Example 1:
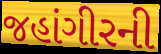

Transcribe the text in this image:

જહાંગીરની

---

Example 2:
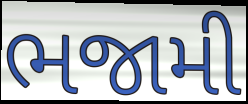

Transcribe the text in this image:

ભજામી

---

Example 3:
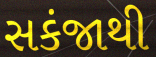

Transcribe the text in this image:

સકંજાથી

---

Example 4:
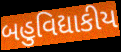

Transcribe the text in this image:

બહુવિદ્યાકીય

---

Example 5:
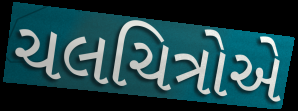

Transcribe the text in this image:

ચલચિત્રોએ